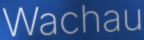
Wachau